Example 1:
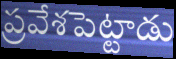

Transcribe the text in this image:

ప్రవేశపెట్టాడు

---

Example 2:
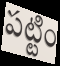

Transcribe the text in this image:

పట్టిం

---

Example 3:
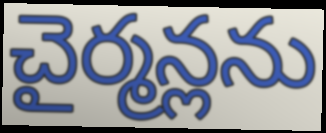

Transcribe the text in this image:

చైర్మన్లను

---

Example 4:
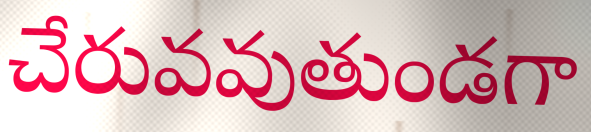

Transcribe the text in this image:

చేరువవుతుండగా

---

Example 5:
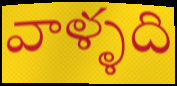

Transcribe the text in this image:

వాళ్ళది